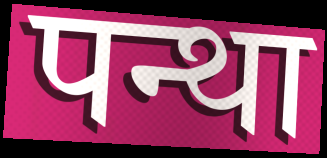
पन्‍था